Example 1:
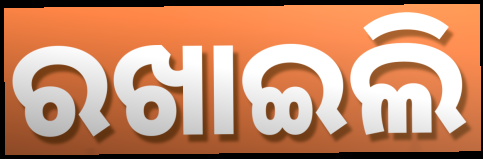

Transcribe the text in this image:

ରଖାଇଲି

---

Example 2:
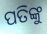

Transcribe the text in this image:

ପତିଙ୍କୁ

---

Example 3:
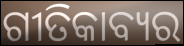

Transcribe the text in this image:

ଗୀତିକାବ୍ୟର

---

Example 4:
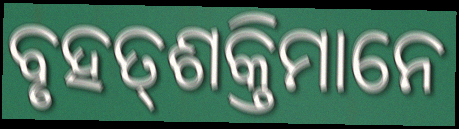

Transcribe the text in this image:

ବୃହତ୍‌ଶକ୍ତିମାନେ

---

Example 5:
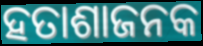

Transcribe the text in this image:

ହତାଶାଜନକ